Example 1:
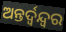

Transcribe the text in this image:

ଅନ୍ତର୍ଦ୍ୱନ୍ଦ୍ୱର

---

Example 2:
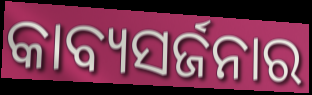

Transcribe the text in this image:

କାବ୍ୟସର୍ଜନାର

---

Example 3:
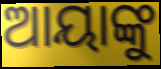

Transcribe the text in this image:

ଆୟାଙ୍କୁ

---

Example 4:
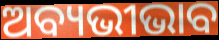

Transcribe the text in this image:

ଅବ୍ୟଭୀଭାବ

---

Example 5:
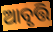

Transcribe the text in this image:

ଆବୃତ୍ତି